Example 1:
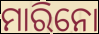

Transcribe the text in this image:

ମାରିନୋ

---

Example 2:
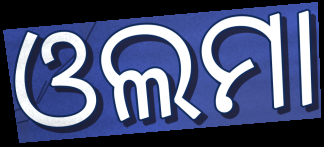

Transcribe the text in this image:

ଓଲମା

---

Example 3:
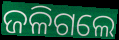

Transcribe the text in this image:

ଜଳିଗଲେ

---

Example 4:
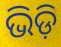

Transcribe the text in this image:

ଭିଡ଼ି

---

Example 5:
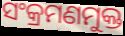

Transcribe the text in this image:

ସଂକ୍ରମଣମୁକ୍ତ